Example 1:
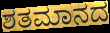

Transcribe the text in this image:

ಶತಮಾನದ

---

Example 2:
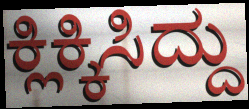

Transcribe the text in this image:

ಕ್ಲಿಕ್ಕಿಸಿದ್ದು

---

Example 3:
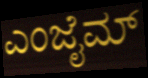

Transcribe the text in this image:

ಎಂಜೈಮ್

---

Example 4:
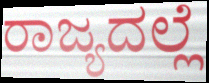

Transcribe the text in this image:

ರಾಜ್ಯದಲ್ಲೆ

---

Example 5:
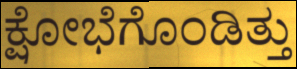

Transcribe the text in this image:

ಕ್ಷೋಭೆಗೊಂಡಿತ್ತು